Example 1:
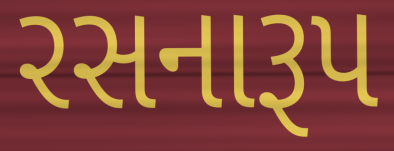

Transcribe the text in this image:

રસનારૂપ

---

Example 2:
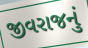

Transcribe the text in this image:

જીવરાજનું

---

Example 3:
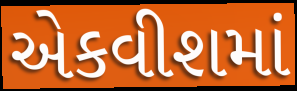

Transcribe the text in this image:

એકવીશમાં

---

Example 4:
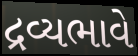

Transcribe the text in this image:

દ્રવ્યભાવે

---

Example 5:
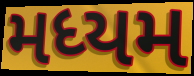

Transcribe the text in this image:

મધ્યમ